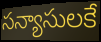
సన్యాసులకే